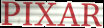
PIXAR